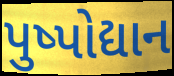
પુષ્પોદ્યાન